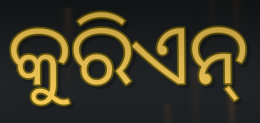
କୁରିଏନ୍